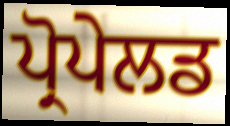
ਪ੍ਰੋਪੇਲਡ